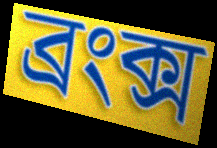
ব্রংক্স